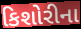
કિશોરીના